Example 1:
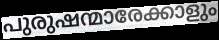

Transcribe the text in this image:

പുരുഷന്മാരേക്കാളും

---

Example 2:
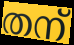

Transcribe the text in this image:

തന്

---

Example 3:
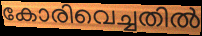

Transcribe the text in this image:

കോരിവെച്ചതിൽ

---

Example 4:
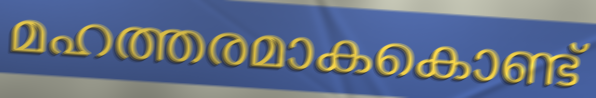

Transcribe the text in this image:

മഹത്തരമാകകൊണ്ട്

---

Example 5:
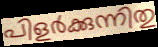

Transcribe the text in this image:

പിളർക്കുന്നിതു